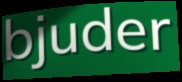
bjuder